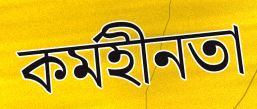
কৰ্মহীনতা